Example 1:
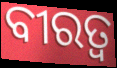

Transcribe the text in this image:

ବୀରତ୍ୱ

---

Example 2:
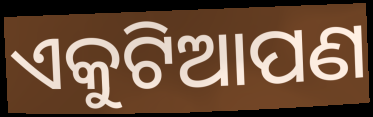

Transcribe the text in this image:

ଏକୁଟିଆପଣ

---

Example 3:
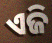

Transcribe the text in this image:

ଏଜି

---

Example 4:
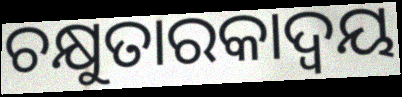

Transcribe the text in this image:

ଚକ୍ଷୁତାରକାଦ୍ଵୟ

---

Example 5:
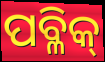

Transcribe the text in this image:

ପବ୍ଳିକ୍